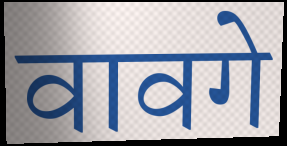
वावगे